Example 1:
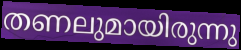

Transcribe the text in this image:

തണലുമായിരുന്നു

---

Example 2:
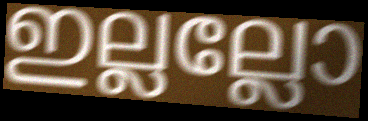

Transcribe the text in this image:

ഇല്ലല്ലോ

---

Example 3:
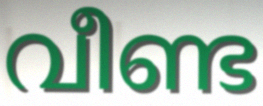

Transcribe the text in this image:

വീണ്ട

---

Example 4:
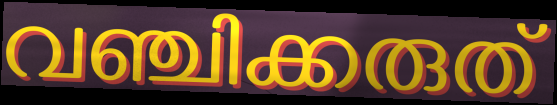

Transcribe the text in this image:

വഞ്ചിക്കരുത്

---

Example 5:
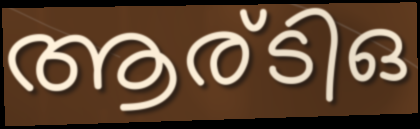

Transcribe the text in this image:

ആര്ടിഒ